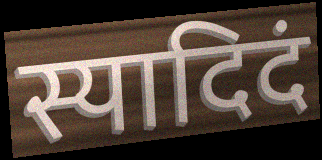
स्यादिदं